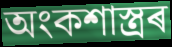
অংকশাস্ত্ৰৰ